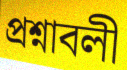
প্রশ্নাবলী